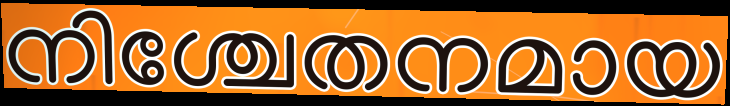
നിശ്ചേതനമായ